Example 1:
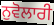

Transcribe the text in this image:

ਨੁਵੋਲਾਰੀ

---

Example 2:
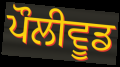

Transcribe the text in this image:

ਪੌਲੀਵੂਡ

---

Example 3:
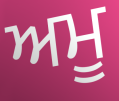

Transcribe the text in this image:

ਅਮੂ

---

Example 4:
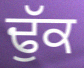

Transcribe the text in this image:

ਢੁੱਕ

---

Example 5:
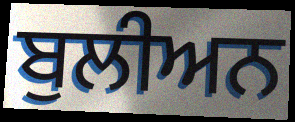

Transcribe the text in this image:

ਬੁਲੀਅਨ